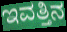
ಇವತ್ತಿನ